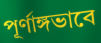
পূর্ণাঙ্গভাবে